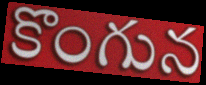
కొంగున